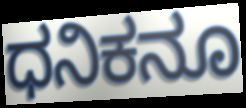
ಧನಿಕನೂ